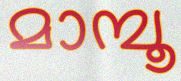
മാമ്പൂ